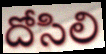
దోసిలి